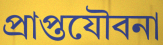
প্রাপ্তযৌবনা